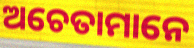
ଅଚେତାମାନେ